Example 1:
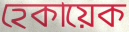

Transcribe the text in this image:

হেকায়েক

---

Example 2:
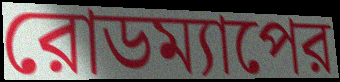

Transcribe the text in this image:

রোডম্যাপের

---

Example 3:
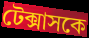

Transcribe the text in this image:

টেক্সাসকে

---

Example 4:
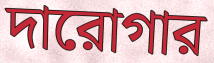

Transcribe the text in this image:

দারোগার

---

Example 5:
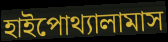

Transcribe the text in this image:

হাইপোথ্যালামাস